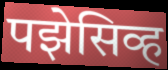
पझेसिव्ह